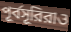
পূর্বসূরিরাও